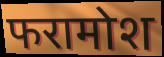
फरामोश